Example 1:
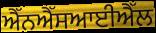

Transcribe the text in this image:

ਐੱਨਐੱਸਆਈਐੱਲ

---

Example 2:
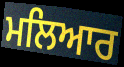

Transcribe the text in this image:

ਮਲਿਆਰ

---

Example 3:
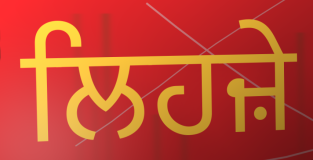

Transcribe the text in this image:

ਲਿਹਜ਼ੇ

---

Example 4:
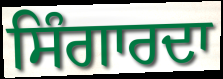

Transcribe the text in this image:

ਸਿੰਗਾਰਦਾ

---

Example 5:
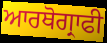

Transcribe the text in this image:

ਆਰਥੋਗ੍ਰਾਫੀ